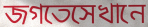
জগতেসেখানে